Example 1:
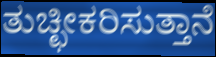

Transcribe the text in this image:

ತುಚ್ಛೀಕರಿಸುತ್ತಾನೆ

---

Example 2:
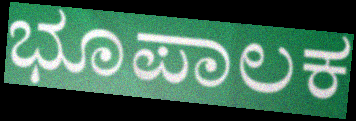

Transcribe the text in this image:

ಭೂಪಾಲಕ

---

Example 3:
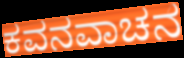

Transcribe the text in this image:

ಕವನವಾಚನ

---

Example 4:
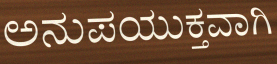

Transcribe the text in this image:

ಅನುಪಯುಕ್ತವಾಗಿ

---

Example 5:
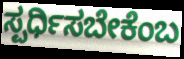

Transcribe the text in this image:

ಸ್ಪರ್ಧಿಸಬೇಕೆಂಬ